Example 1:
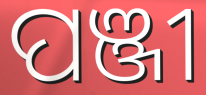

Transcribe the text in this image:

ପଞ୍ଜୀ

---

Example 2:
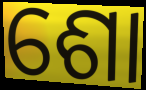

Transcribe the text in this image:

ଶୋ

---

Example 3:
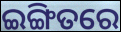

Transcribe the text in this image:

ଇଙ୍ଗିତରେ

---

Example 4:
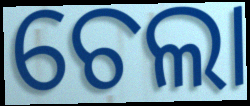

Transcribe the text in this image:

ଚେଲା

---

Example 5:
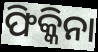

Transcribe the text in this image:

ଫିକ୍କିନା